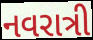
નવરાત્રી